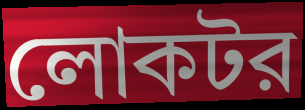
লোকটর